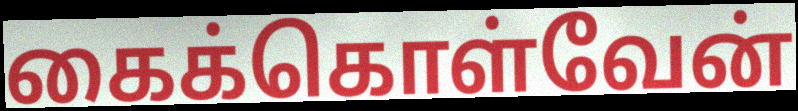
கைக்கொள்வேன்